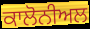
ਕਾਲੋਨੀਅਲ